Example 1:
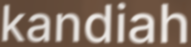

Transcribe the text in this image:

kandiah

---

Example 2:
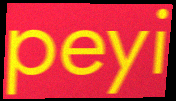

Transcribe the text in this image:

peyi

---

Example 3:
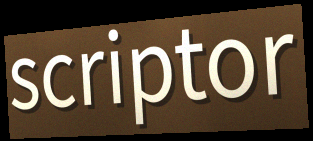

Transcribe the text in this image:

scriptor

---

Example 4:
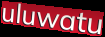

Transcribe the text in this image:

uluwatu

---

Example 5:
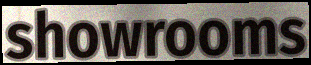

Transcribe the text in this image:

showrooms